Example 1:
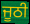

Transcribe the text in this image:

ਜੂਠੀ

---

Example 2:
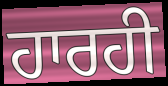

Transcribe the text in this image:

ਹਾਰਹੀ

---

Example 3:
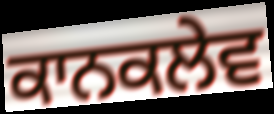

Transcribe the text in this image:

ਕਾਨਕਲੇਵ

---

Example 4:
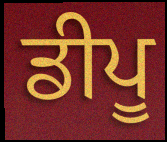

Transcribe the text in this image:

ਡੀਪੂ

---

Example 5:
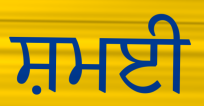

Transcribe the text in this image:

ਸ਼ਮਈ